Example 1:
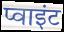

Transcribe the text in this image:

प्‍वाइंट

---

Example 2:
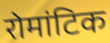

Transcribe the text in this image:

रोमांटिक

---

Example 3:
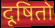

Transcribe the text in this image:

दूषितो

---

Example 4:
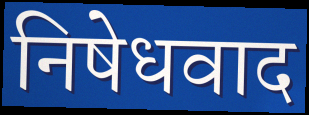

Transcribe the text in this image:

निषेधवाद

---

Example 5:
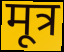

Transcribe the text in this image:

मूत्र